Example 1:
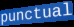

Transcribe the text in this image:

punctual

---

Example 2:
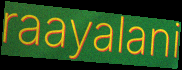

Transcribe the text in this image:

raayalani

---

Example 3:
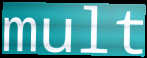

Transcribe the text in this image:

mult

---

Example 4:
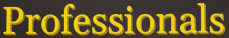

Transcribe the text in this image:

Professionals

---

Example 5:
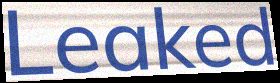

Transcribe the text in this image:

Leaked